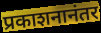
प्रकाशनानंतर